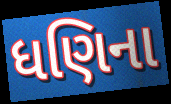
ધણિના